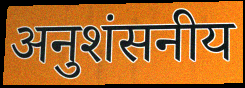
अनुशंसनीय